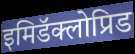
इमिडॅक्लोप्रिड